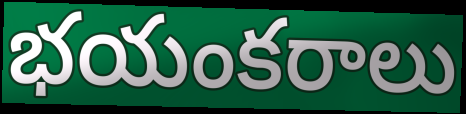
భయంకరాలు